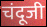
चंदूजी